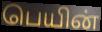
பெயின்